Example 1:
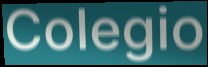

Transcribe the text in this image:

Colegio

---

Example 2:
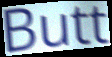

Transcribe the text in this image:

Butt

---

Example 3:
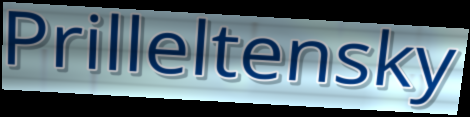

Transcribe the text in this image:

Prilleltensky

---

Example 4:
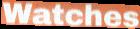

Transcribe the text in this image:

Watches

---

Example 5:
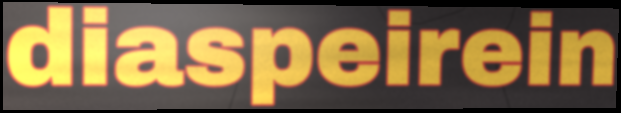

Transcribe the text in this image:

diaspeirein